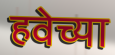
हवेच्या